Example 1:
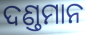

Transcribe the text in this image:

ଦଣ୍ଡମାନ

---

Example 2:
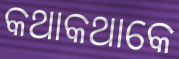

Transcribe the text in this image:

କଥାକଥାକେ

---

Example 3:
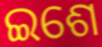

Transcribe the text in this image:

ଇଶେ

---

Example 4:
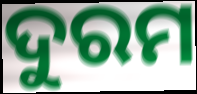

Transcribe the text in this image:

ଦୁରମ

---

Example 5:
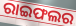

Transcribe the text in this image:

ରାଇଫଲର